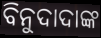
ବିନୁଦାଦାଙ୍କ